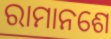
ରାମାନଶେ